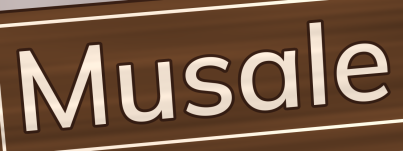
Musale